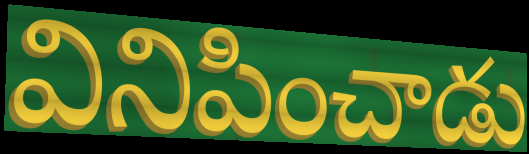
వినిపించాడు